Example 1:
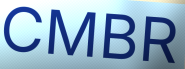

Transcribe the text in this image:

CMBR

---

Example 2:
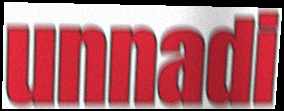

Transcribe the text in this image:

unnadi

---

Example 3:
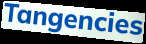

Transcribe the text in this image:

Tangencies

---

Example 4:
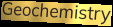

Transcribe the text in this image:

Geochemistry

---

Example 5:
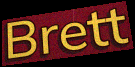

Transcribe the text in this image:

Brett